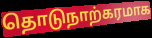
தொடுநாற்கரமாக